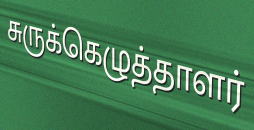
சுருக்கெழுத்தாளர்